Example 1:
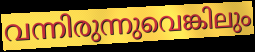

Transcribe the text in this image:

വന്നിരുന്നുവെങ്കിലും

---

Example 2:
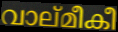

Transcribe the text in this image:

വാല്മീകീ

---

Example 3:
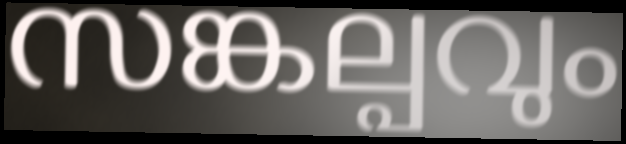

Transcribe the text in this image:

സങ്കല്പവും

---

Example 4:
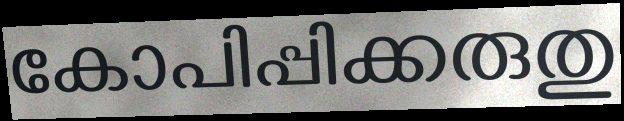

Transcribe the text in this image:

കോപിപ്പിക്കരുതു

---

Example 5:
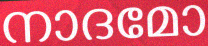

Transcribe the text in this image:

നാദമോ